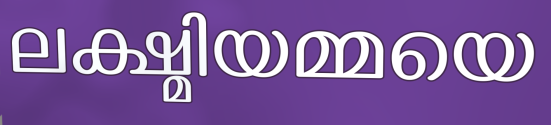
ലക്ഷ്മിയമ്മയെ